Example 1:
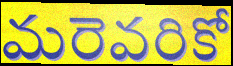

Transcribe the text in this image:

మరెవరికో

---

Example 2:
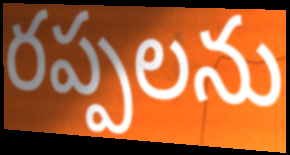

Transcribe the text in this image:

రప్పలను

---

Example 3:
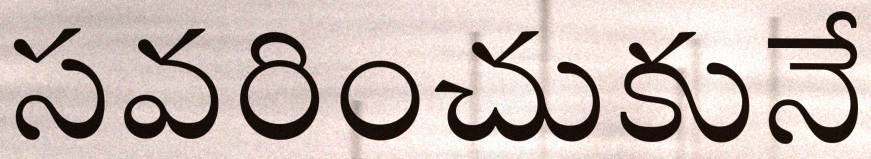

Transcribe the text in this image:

సవరించుకునే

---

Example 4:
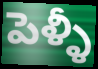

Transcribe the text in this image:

పెళ్ళీ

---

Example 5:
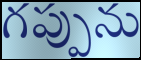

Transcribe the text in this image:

గప్పును